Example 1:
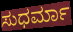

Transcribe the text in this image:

ಸುಧರ್ಮಾ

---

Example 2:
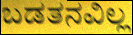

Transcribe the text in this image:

ಬಡತನವಿಲ್ಲ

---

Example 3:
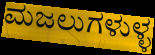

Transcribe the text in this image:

ಮಜಲುಗಳುಳ್ಳ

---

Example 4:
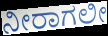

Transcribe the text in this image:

ನೀರಾಗಲೀ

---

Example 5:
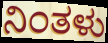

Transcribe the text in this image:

ನಿಂತಳು